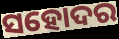
ସହୋଦର